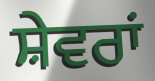
ਸ਼ੇਵਰਾਂ